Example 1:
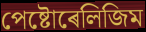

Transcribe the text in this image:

পেষ্টোৰেলিজিম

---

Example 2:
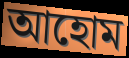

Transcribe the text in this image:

আহোম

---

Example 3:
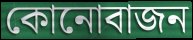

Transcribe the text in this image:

কোনোবাজন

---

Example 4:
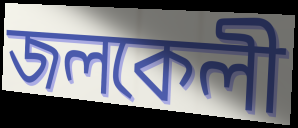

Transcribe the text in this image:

জলকেলী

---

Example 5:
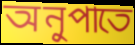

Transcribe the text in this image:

অনুপাতে